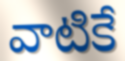
వాటికే